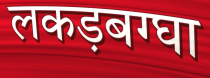
लकड़बग्घा